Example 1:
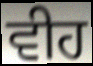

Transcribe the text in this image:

ਵੀਹ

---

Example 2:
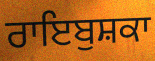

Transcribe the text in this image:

ਰਾਇਬੁਸ਼ਕਾ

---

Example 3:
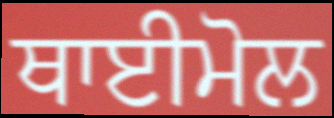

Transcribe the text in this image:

ਥਾਈਮੋਲ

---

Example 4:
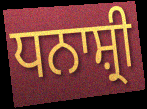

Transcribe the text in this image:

ਧਨਾਸ਼੍ਰੀ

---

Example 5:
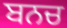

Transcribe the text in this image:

ਬਨਚ